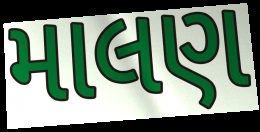
માલણ